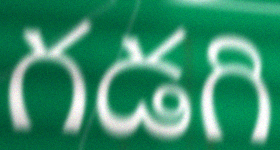
గడగి